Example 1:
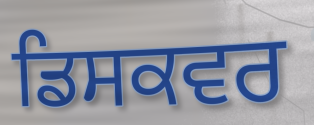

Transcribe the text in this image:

ਡਿਸਕਵਰ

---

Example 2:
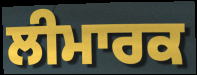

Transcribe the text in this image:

ਲੀਮਾਰਕ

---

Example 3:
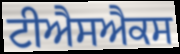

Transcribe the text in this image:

ਟੀਐਸਐਕਸ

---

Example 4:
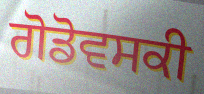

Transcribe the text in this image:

ਗੋਡੋਵਸਕੀ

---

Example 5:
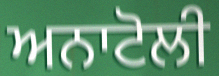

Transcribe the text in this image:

ਅਨਾਟੋਲੀ